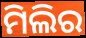
ମିଲିର